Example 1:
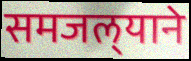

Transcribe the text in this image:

समजल्याने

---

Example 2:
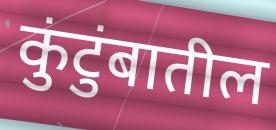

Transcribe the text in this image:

कुंटुंबातील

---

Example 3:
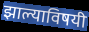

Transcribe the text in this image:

झाल्याविषयी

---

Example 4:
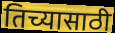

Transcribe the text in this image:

तिच्यासाठी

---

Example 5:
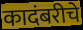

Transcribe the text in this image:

कादंबरीचे